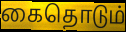
கைதொடும்